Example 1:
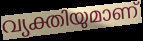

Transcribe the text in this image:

വ്യക്തിയുമാണ്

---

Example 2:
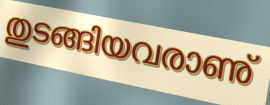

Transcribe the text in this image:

തുടങ്ങിയവരാണു്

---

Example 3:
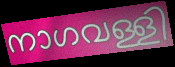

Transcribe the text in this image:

നാഗവള്ളി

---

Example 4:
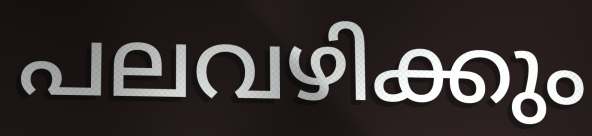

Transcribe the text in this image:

പലവഴിക്കും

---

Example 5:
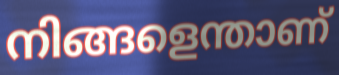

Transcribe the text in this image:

നിങ്ങളെന്താണ്